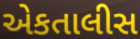
એકતાલીસ